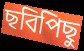
ছবিপিছু